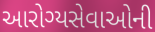
આરોગ્યસેવાઓની